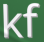
kf